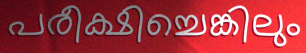
പരീക്ഷിച്ചെങ്കിലും